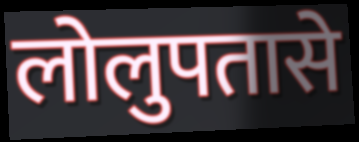
लोलुपतासे